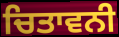
ਚਿਤਾਵਨੀ